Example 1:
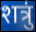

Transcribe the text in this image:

शत्रुं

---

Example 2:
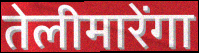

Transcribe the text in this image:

तेलीमारेंगा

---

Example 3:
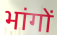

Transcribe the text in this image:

भांगों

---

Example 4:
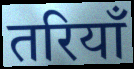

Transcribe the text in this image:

तरियाँ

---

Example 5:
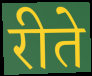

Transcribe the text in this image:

रीते